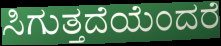
ಸಿಗುತ್ತದೆಯೆಂದರೆ